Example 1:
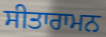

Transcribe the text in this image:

ਸੀਤਾਰਾਮਨ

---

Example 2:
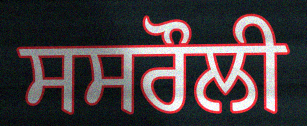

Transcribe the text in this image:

ਸਸਰੌਲੀ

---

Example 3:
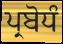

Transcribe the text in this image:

ਪ੍ਰਬੋਧੰ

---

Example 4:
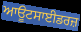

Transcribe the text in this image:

ਆਊਟਸਾਈਡਰਜ਼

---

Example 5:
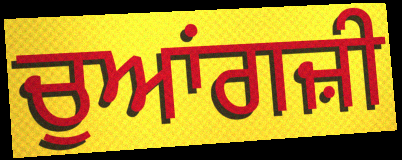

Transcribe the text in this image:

ਚੁਆਂਗਜ਼ੀ